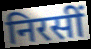
निरसीं